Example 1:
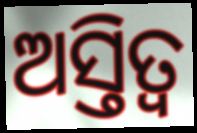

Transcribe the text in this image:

ଅସ୍ତିତ୍ଵ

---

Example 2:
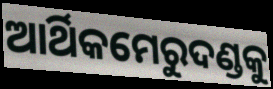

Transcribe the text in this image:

ଆର୍ଥିକମେରୁଦଣ୍ଡକୁ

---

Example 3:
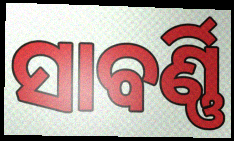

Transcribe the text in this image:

ସାବର୍ଣ୍ଣି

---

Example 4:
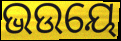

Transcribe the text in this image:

ଭଉୟେ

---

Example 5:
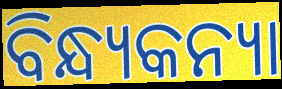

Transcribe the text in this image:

ବିନ୍ଧ୍ୟକନ୍ୟା